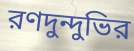
রণদুন্দুভির